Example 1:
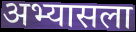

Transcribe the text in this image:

अभ्यासला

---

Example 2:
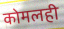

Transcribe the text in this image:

कोमलही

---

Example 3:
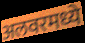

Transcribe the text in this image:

अलवरमध्ये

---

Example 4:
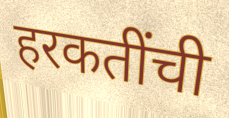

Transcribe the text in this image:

हरकतींची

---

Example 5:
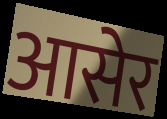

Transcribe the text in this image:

आसेर